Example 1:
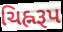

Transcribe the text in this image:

ચિહ્નરૂપ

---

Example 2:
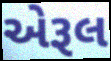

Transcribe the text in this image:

એરૂલ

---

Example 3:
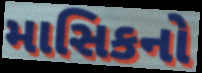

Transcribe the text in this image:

માસિકનો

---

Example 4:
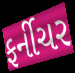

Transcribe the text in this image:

ફર્નીચર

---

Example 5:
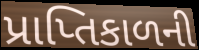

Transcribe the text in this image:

પ્રાપ્તિકાળની